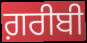
ਗ਼ਰੀਬੀ